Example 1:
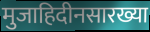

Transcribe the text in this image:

मुजाहिदीनसारख्या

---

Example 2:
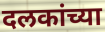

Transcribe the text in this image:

दलकांच्या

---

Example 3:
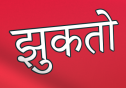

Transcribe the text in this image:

झुकतो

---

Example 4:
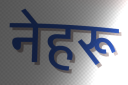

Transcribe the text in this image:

नेहरू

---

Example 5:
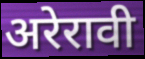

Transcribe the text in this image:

अरेरावी